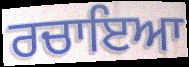
ਰਚਾਇਆ